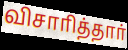
விசாரித்தார்